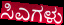
ಸಿಎಗಳು